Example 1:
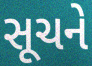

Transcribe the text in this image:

સૂચને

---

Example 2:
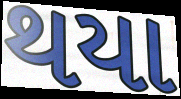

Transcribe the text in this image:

થયા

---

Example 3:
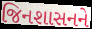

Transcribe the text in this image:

જિનશાસનને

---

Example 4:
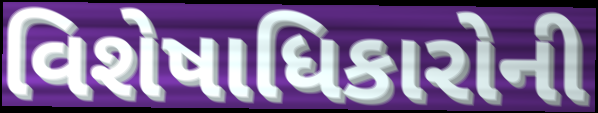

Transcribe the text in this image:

વિશેષાધિકારોની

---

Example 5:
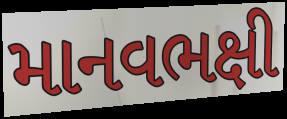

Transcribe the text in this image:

માનવભક્ષી